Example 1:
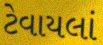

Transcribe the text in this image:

ટેવાયલાં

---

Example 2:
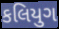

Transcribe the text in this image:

કલિયુગ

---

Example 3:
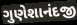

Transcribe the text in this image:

ગુણેશાનંદજી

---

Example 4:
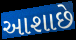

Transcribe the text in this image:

આશાછે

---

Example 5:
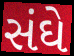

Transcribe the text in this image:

સંઘે